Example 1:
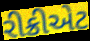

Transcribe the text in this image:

રીક્રીએટ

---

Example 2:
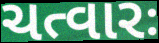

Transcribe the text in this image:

ચત્વારઃ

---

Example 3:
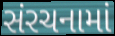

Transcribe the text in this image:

સંરચનામાં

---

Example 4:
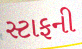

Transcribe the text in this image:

સ્ટાફની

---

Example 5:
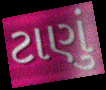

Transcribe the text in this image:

ટાણું